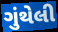
ગુંથેલી